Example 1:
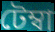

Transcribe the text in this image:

টেম্বা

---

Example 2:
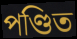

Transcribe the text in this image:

পণ্ডিত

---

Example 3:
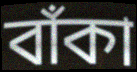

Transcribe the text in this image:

বাঁকা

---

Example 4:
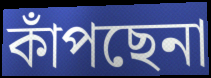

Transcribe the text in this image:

কাঁপছেনা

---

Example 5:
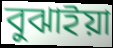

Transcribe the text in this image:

বুঝাইয়া